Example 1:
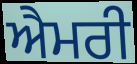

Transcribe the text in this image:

ਐਮਰੀ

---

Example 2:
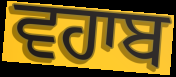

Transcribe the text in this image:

ਵਹਾਬ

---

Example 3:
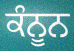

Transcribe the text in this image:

ਕੰਨੂਨ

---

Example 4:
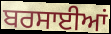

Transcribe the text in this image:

ਬਰਸਾਈਆਂ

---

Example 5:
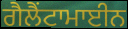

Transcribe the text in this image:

ਗੈਲੈਂਟਾਮਾਈਨ